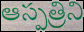
ఆస్పత్రిని